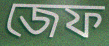
জেফ